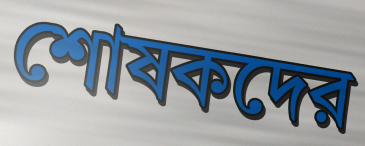
শোষকদের